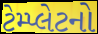
ટેમ્પ્લેટનો